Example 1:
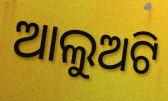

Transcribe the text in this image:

ଆଲୁଅଟି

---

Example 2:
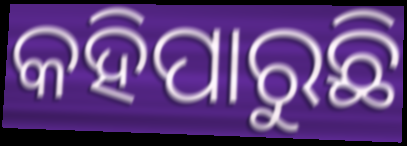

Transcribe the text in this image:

କହିପାରୁଛି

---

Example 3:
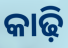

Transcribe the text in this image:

କାଢ଼ି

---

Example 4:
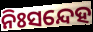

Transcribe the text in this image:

ନିଃସନ୍ଦେହ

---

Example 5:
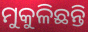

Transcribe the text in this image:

ମୁକୁଳିଛନ୍ତି